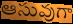
ఆసువుగా